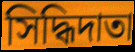
সিদ্ধিদাতা